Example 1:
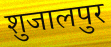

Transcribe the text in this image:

शुजालपुर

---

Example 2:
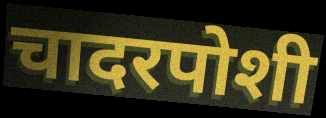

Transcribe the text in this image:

चादरपोशी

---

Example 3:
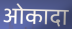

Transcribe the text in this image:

ओकादा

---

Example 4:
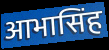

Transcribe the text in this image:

आभासिंह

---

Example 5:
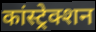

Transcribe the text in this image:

कांस्ट्रेक्शन